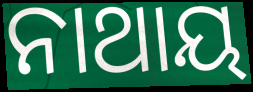
ନାଥାୟ